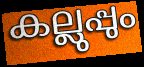
കല്ലുപ്പും